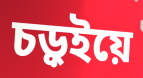
চড়ুইয়ে